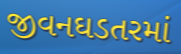
જીવનઘડતરમાં